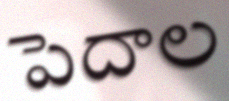
పెదాల